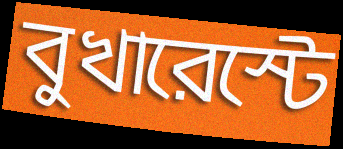
বুখারেস্টে